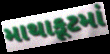
માથાકૂટમાં